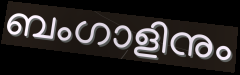
ബംഗാളിനും